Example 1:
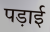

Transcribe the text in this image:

पड़ाई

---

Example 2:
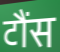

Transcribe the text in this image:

टौंस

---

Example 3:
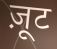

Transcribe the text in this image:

ज़ूट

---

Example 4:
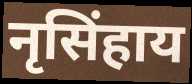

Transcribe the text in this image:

नृसिंहाय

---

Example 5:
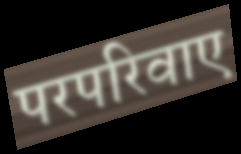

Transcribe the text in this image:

परपरिवाए